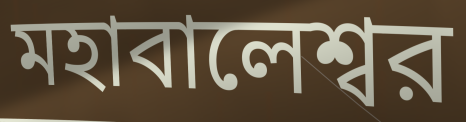
মহাবালেশ্বর